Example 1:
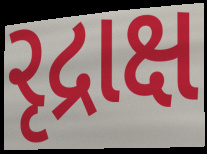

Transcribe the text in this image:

રૃદ્રાક્ષ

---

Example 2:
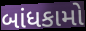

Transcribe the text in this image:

બાંધકામો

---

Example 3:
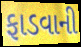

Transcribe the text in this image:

ફાડવાની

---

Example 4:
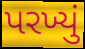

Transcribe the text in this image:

પરખ્યું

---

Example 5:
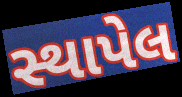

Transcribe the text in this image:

સ્થાપેલ